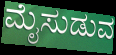
ಮೈಸುಡುವ